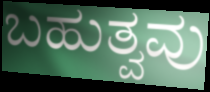
ಬಹುತ್ವವು